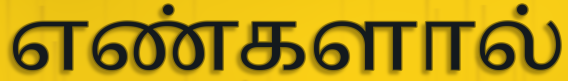
எண்களால்